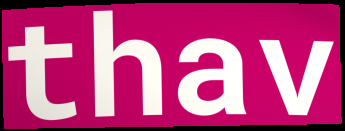
thav